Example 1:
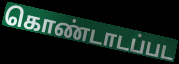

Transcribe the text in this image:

கொண்டாடப்பட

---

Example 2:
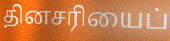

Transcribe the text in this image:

தினசரியைப்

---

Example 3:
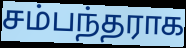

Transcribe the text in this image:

சம்பந்தராக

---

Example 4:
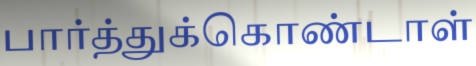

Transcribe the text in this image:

பார்த்துக்கொண்டாள்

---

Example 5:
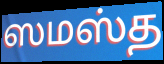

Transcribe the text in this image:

ஸமஸ்த